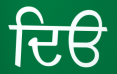
ਦਿੳ